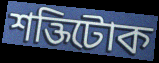
শক্তিটোক